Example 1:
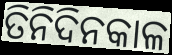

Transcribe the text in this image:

ତିନିଦିନକାଳ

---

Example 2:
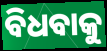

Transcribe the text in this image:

ବିଧବାକୁ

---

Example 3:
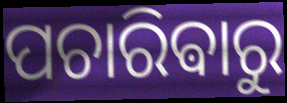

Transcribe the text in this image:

ପଚାରିଵାରୁ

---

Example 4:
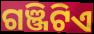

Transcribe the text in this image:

ଗଞ୍ଜିଟିଏ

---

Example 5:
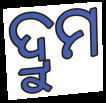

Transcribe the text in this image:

ଦ୍ରୁମ